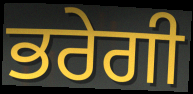
ਭਰੇਗੀ